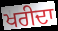
ਖਰੀਦਾ